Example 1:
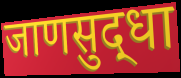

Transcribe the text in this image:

जाणसुद्धा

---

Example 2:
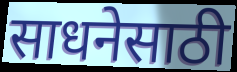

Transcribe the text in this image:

साधनेसाठी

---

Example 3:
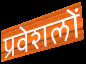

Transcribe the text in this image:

प्रवेशलों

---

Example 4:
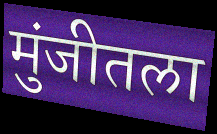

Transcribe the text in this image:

मुंजीतला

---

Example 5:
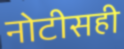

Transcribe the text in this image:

नोटीसही